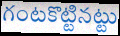
గంటకొట్టినట్టు